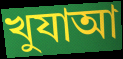
খুযাআ